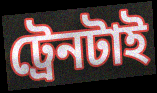
ট্রেনটাই